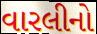
વારલીનો